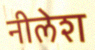
नीलेश